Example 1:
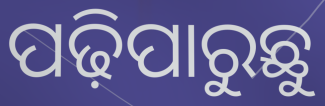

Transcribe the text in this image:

ପଢ଼ିପାରୁଛୁ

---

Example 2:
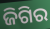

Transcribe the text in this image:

ଜିଗିର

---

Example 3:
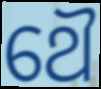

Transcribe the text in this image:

ଥୈ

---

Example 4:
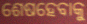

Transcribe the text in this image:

ଶେଷହେବାକୁ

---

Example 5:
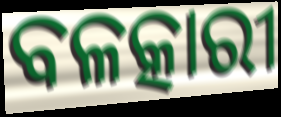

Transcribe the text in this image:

ବଳତ୍କାରୀ